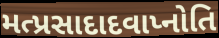
મત્પ્રસાદાદવાપ્નોતિ